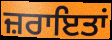
ਜ਼ਰਾਇਤਾਂ